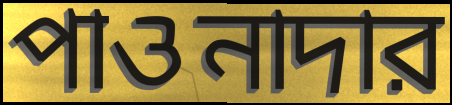
পাওনাদার